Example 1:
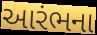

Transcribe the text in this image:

આરંભના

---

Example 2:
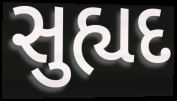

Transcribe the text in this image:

સુહ્યદ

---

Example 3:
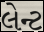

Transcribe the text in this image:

લેન્ટ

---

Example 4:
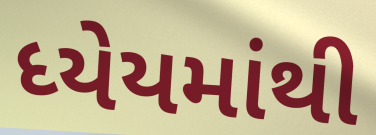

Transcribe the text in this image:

ધ્યેયમાંથી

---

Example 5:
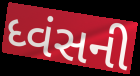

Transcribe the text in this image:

ધ્વંસની